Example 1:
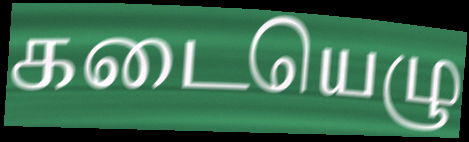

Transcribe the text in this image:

கடையெழு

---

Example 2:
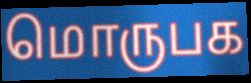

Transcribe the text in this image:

மொருபக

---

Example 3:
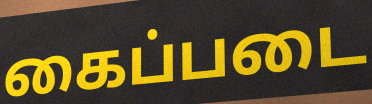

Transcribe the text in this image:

கைப்படை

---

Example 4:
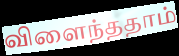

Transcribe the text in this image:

விளைந்ததாம்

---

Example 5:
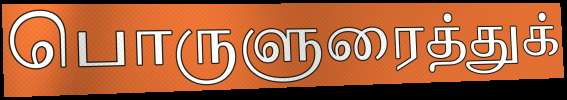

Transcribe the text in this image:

பொருளுரைத்துக்